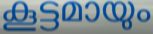
കൂട്ടമായും